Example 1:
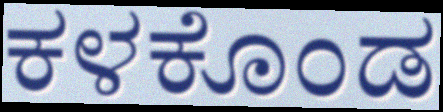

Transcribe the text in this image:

ಕಳಕೊಂಡ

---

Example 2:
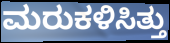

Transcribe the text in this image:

ಮರುಕಳಿಸಿತ್ತು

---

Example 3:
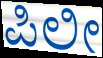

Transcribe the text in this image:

ಪಿಲೀ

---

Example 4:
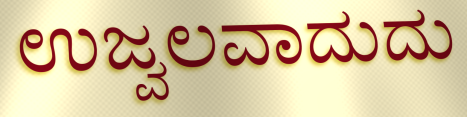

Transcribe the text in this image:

ಉಜ್ವಲವಾದುದು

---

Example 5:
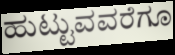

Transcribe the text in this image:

ಹುಟ್ಟುವವರೆಗೂ